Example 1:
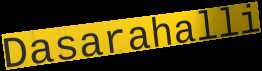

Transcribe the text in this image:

Dasarahalli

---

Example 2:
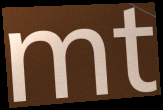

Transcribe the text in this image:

mt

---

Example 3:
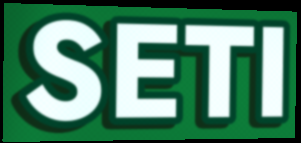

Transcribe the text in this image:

SETI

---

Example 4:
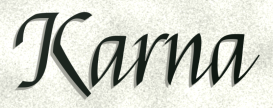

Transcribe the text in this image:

Karna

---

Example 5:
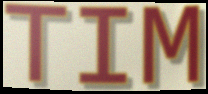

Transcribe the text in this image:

TIM